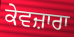
ਕੇਵਜ਼ਾਰਾ